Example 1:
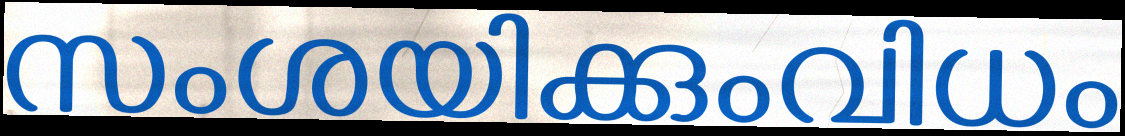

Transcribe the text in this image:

സംശയിക്കുംവിധം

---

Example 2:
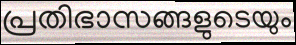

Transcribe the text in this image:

പ്രതിഭാസങ്ങളുടെയും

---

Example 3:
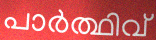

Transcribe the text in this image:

പാർത്ഥിവ്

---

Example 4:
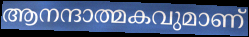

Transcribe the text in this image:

ആനന്ദാത്മകവുമാണ്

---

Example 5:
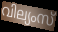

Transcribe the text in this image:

വില്യംസ്